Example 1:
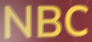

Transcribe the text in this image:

NBC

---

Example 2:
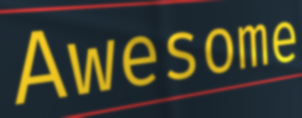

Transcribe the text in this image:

Awesome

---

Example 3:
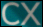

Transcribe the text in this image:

CX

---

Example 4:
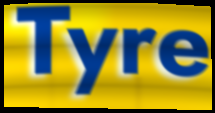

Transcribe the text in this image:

Tyre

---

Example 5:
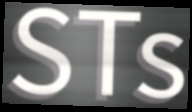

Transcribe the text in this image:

STs